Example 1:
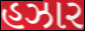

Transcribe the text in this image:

હઝાર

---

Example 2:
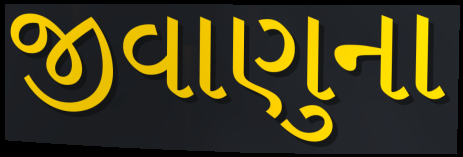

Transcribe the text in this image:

જીવાણુના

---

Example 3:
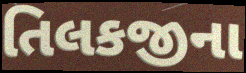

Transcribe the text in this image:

તિલકજીના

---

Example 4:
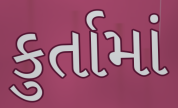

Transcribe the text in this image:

કુર્તામાં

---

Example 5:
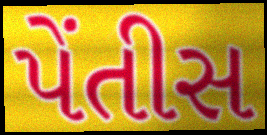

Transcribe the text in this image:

પેંતીસ